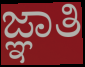
ಜ್ಞಾತಿ